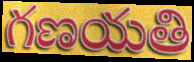
గణయతి